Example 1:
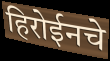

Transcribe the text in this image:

हिरोईनचे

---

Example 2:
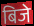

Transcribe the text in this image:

बिजे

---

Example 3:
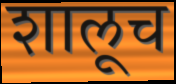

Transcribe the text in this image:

शालूच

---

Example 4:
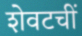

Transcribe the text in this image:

शेवटचीं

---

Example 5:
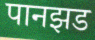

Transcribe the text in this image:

पानझड